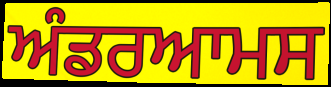
ਅੰਡਰਆਮਸ